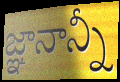
జ్ఞానాన్నీ